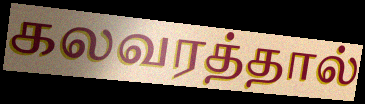
கலவரத்தால்